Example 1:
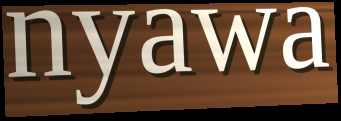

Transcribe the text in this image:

nyawa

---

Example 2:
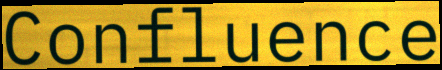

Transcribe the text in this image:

Confluence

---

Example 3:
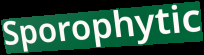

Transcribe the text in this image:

Sporophytic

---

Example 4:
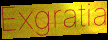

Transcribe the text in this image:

Exgratia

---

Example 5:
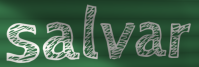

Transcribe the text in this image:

salvar